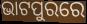
ଭାଟପୁରରେ